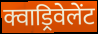
क्वाड्रिवेलेंट